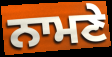
ਨਾਮਣੇ